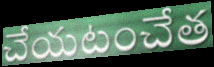
చేయటంచేత